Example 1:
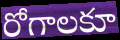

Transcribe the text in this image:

రోగాలకూ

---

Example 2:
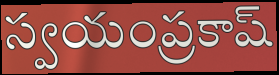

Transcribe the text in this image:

స్వయంప్రకాష్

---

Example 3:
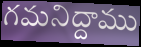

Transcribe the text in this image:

గమనిద్దాము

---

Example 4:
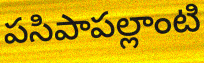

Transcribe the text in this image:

పసిపాపల్లాంటి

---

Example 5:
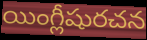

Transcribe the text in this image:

యింగ్లీషురచన